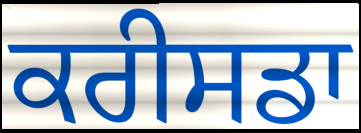
ਕਰੀਸਡਾ